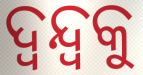
ଦ୍ୱନ୍ଦ୍ୱକୁ